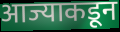
आज्याकडून